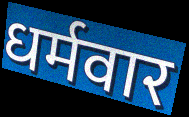
धर्मवार